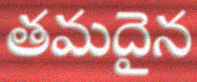
తమదైన